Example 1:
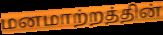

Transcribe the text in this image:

மனமாற்றத்தின்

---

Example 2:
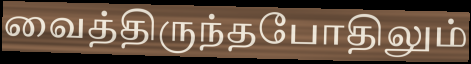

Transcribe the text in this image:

வைத்திருந்தபோதிலும்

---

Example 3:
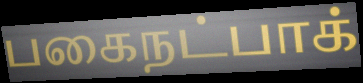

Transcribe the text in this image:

பகைநட்பாக்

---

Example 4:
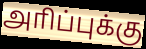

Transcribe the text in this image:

அரிப்புக்கு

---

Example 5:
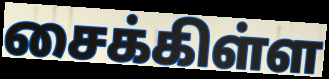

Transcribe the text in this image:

சைக்கிள்ள